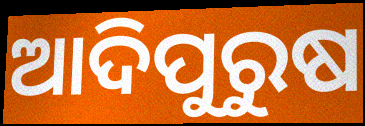
ଆଦିପୁରୁଷ